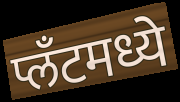
प्लँटमध्ये